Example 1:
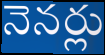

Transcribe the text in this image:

నెనర్లు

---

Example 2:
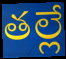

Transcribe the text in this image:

తల్లే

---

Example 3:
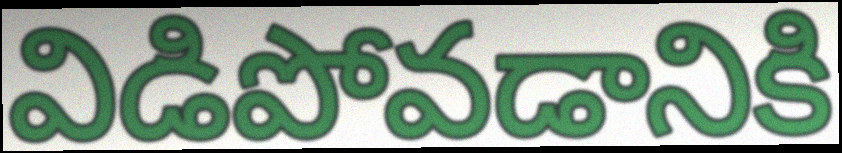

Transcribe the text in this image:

విడిపోవడానికి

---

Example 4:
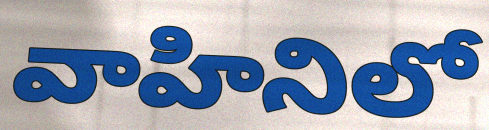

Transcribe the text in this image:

వాహినిలో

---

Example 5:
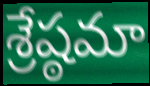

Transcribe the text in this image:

శ్రేష్ఠమా